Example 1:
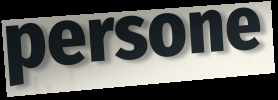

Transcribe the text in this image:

persone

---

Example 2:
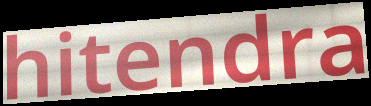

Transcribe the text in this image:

hitendra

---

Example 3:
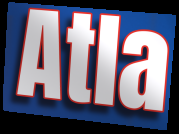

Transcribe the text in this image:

Atla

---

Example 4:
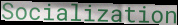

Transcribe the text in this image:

Socialization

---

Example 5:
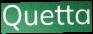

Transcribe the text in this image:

Quetta